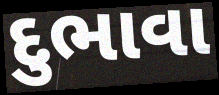
દુભાવા